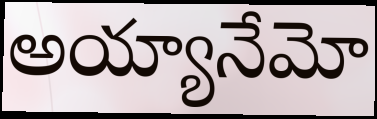
అయ్యానేమో